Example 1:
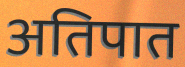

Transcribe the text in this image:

अतिपात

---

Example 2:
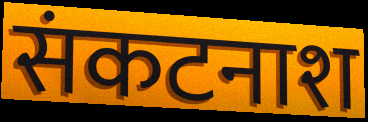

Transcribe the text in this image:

संकटनाश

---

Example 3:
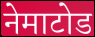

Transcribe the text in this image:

नेमाटोड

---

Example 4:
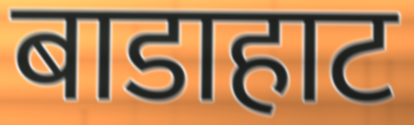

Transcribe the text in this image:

बाडाहाट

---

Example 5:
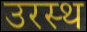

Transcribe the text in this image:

उरस्थ